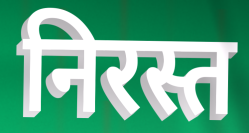
निरस्त